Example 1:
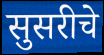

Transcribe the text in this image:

सुसरीचे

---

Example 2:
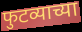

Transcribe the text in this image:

फुटव्याच्या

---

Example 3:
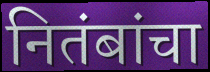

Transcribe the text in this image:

नितंबांचा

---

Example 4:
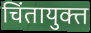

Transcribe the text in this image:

चिंतायुक्त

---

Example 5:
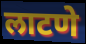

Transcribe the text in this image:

लाटणे